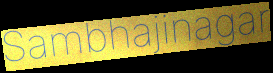
Sambhajinagar